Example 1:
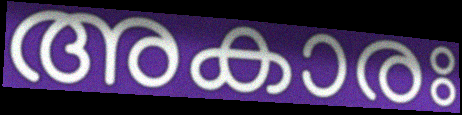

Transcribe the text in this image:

അകാരഃ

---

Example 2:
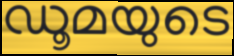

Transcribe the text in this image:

ഡൂമയുടെ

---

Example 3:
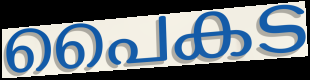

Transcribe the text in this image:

പൈകട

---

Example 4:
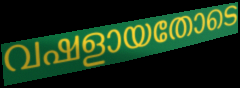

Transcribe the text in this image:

വഷളായതോടെ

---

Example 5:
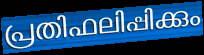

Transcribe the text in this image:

പ്രതിഫലിപ്പിക്കും